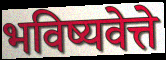
भविष्यवेत्ते